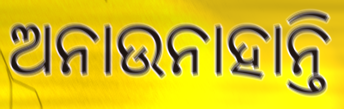
ଅନାଉନାହାନ୍ତି